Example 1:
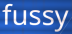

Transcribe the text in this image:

fussy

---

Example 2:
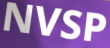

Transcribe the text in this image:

NVSP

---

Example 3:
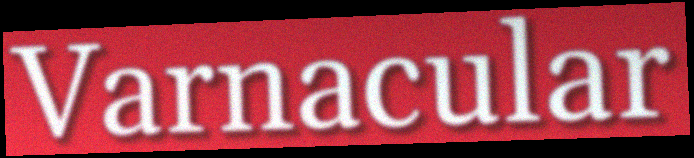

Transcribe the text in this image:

Varnacular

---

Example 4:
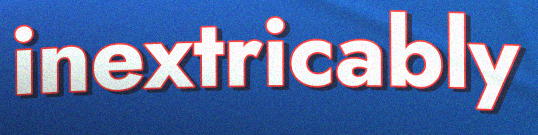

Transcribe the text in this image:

inextricably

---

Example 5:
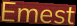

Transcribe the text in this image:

Emest